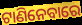
ଟାଣିନେବାରେ